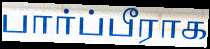
பார்ப்பீராக